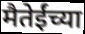
मैतेईंच्या